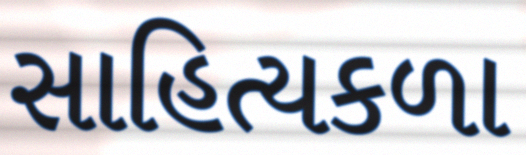
સાહિત્યકળા